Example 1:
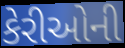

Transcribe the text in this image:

કેરીઓની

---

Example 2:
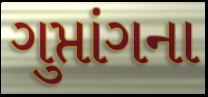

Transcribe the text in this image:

ગુપ્તાંગના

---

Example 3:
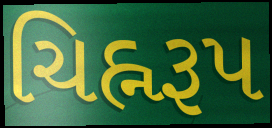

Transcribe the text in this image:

ચિહ્નરૂપ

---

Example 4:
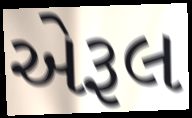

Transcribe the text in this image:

એરૂલ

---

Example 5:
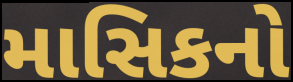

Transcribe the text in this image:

માસિકનો